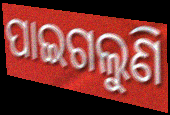
ପାଇଗଲୁଣି